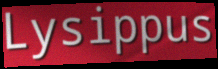
Lysippus